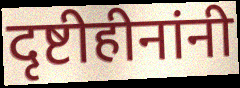
दृष्टीहीनांनी